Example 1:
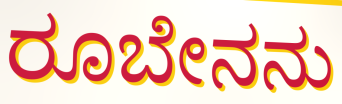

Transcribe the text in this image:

ರೂಬೇನನು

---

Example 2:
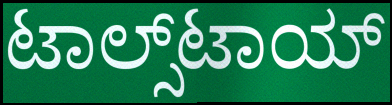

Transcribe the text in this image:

ಟಾಲ್ಸ್‌ಟಾಯ್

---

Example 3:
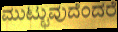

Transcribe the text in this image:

ಮುಟ್ಟುವುದೆಂದರೆ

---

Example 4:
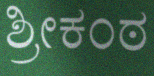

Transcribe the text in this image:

ಶ್ರೀಕಂಠ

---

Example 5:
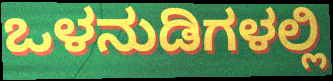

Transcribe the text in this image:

ಒಳನುಡಿಗಳಲ್ಲಿ